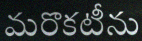
మరొకటీను